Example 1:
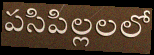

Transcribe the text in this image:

పసిపిల్లలలో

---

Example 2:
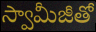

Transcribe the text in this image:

స్వామీజీతో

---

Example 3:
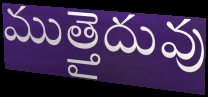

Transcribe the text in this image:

ముత్తైదువు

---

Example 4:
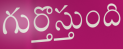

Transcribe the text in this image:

గుర్తొస్తుంది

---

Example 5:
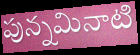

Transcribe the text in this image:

పున్నమినాటి